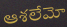
ఆశలేమో